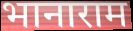
भानाराम